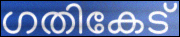
ഗതികേട്